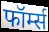
फॉर्म्स